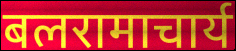
बलरामाचार्य